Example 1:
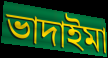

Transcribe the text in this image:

ভাদাইমা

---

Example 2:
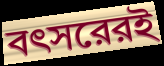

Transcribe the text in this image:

বৎসরেরই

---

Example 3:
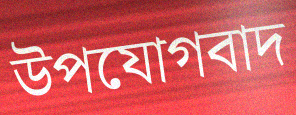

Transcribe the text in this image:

উপযোগবাদ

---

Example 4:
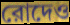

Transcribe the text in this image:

রোদেও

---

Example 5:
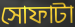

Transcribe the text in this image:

সোফাটা